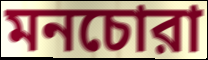
মনচোরা